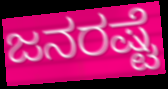
ಜನರಷ್ಟೆ